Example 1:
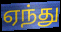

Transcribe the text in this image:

ஏந்து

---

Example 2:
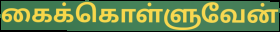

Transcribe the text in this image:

கைக்கொள்ளுவேன்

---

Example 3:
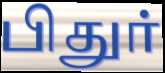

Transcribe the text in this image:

பிதுர்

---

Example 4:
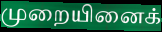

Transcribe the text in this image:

முறையினைக்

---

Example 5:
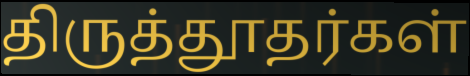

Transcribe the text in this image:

திருத்தூதர்கள்